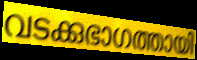
വടക്കുഭാഗത്തായി